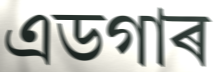
এডগাৰ